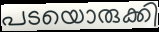
പടയൊരുക്കി